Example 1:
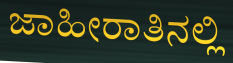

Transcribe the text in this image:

ಜಾಹೀರಾತಿನಲ್ಲಿ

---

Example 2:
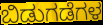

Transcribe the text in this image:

ಬಿಡುಗಡೆಗಳ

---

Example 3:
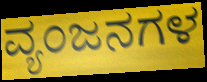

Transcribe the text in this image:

ವ್ಯಂಜನಗಳ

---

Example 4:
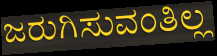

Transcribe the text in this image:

ಜರುಗಿಸುವಂತಿಲ್ಲ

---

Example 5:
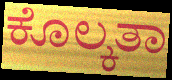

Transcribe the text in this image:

ಕೊಲ್ಕತಾ